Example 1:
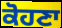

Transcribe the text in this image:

ਕੋਹਣਾ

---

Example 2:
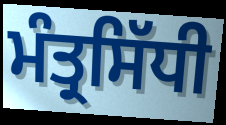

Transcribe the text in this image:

ਮੰਤ੍ਰਸਿੱਧੀ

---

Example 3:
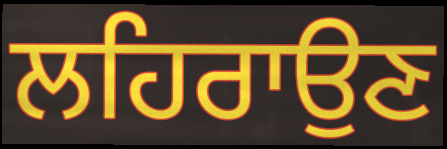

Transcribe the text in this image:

ਲਹਿਰਾਉਣ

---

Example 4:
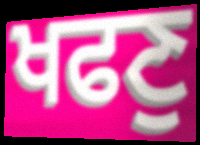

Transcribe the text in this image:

ਖਫਣੁ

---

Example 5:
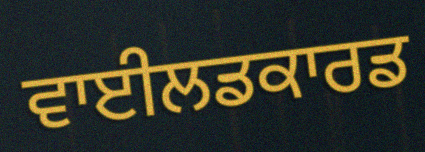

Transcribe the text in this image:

ਵਾਈਲਡਕਾਰਡ